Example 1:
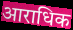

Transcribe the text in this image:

आराधिक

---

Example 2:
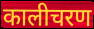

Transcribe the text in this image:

कालीचरण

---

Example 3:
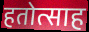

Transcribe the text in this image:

हतोत्साह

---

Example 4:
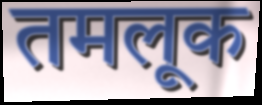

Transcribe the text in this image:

तमलूक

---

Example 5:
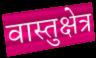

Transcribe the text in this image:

वास्तुक्षेत्र